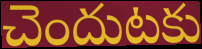
చెందుటకు